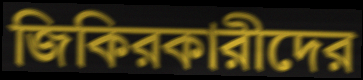
জিকিরকারীদের